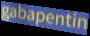
gabapentin